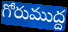
గోరుముద్ద